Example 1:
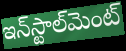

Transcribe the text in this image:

ఇన్‌స్టాల్‌మెంట్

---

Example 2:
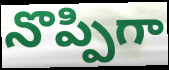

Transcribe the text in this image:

నొప్పిగా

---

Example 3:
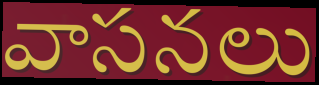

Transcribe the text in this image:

వాసనలు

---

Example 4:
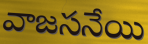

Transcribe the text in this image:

వాజసనేయి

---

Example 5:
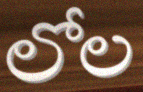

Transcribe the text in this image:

లోల